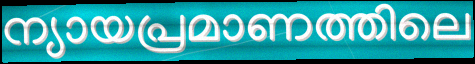
ന്യായപ്രമാണത്തിലെ